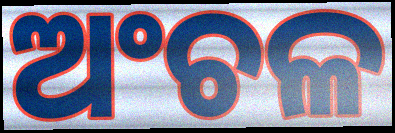
ଅଂଚଳ